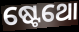
ଷ୍ଟେଥୋ